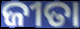
ଜୀତା